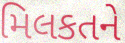
મિલકતને